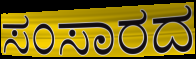
ಸಂಸಾರದ